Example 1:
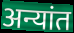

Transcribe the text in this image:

अन्यांत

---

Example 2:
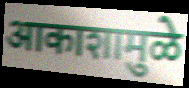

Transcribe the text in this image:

आकाशामुळे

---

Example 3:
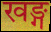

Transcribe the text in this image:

खङ्ग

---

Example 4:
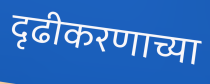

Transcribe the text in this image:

दृढीकरणाच्या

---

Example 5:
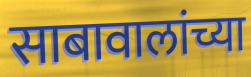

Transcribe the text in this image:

साबावालांच्या